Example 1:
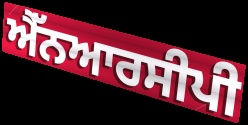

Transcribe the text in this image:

ਐੱਨਆਰਸੀਪੀ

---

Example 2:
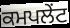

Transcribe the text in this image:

ਕਮਪਲੇਂਟ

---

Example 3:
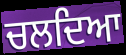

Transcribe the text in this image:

ਚਲਦਿਆ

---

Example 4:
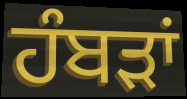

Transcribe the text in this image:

ਹੰਬੜਾਂ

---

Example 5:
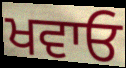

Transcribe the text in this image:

ਖਵਾਓ